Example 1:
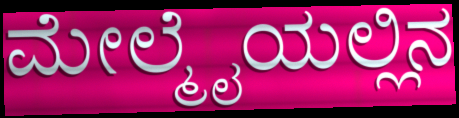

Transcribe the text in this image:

ಮೇಲ್ಮೈಯಲ್ಲಿನ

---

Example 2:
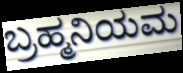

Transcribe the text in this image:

ಬ್ರಹ್ಮನಿಯಮ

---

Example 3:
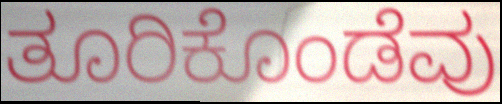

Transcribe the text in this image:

ತೂರಿಕೊಂಡೆವು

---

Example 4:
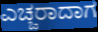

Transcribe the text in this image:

ಎಚ್ಚರಾದಾಗ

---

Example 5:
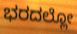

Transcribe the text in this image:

ಭರದಲ್ಲೋ